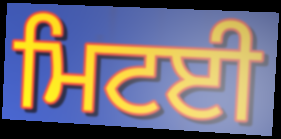
ਮਿਟਈ